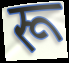
रू